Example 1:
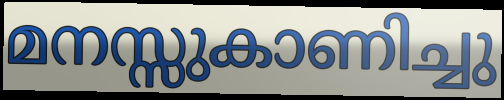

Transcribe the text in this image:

മനസ്സുകാണിച്ചു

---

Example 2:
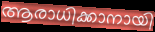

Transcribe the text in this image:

ആരാധിക്കാനായി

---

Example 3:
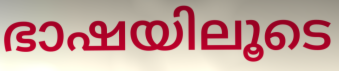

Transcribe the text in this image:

ഭാഷയിലൂടെ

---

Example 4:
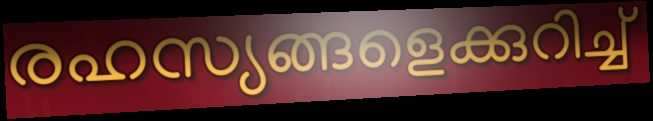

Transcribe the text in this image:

രഹസ്യങ്ങളെക്കുറിച്ച്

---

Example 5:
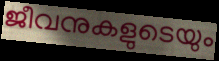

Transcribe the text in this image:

ജീവനുകളുടെയും